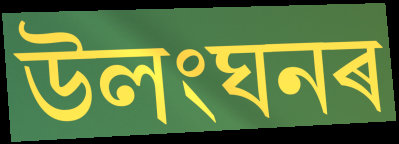
উলংঘনৰ